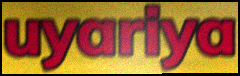
uyariya